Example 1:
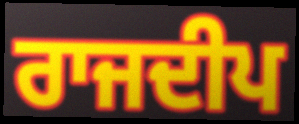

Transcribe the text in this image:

ਰਾਜਦੀਪ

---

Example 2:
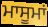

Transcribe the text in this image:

ਮਾਸੂਮਾਂ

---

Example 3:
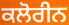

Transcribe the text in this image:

ਕਲੋਰੀਨ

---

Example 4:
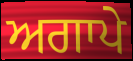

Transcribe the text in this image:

ਅਗਾਪੇ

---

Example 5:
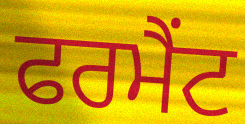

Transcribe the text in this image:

ਫਰਮੈਂਟ